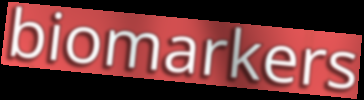
biomarkers